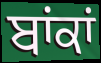
ਬਾਂਕਾਂ